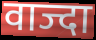
वाज्दा